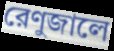
রেণুজালে